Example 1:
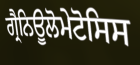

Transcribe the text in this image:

ਗ੍ਰੈਨਿਊਲੋਮੇਟੋਸਿਸ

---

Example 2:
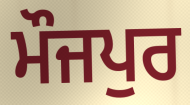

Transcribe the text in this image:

ਮੌਜਪੁਰ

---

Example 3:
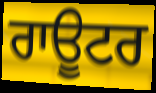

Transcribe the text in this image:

ਰਾਊਟਰ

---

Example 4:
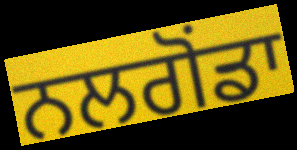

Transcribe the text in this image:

ਨਲਗੋਂਡਾ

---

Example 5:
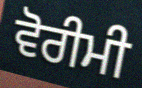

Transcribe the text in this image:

ਵੋਰੀਮੀ